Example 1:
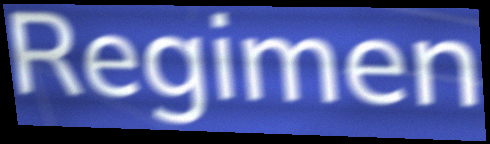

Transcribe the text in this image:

Regimen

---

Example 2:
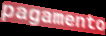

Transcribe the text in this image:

pagamento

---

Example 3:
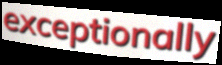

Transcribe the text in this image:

exceptionally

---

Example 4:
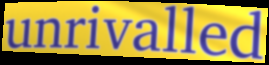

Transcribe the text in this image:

unrivalled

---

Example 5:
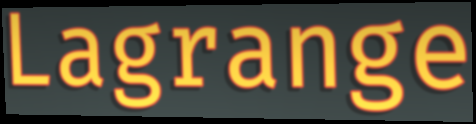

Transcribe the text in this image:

Lagrange